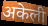
अकेली